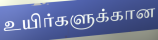
உயிர்களுக்கான